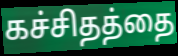
கச்சிதத்தை